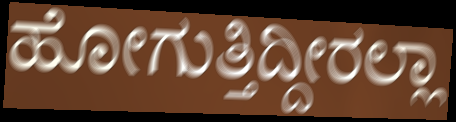
ಹೋಗುತ್ತಿದ್ದೀರಲ್ಲಾ